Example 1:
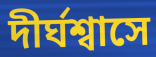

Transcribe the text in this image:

দীর্ঘশ্বাসে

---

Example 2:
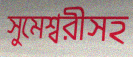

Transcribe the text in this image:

সুমেশ্বরীসহ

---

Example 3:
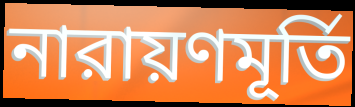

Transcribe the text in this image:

নারায়ণমূর্তি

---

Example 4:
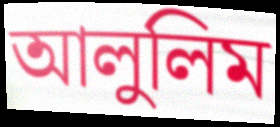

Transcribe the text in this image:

আলুলিম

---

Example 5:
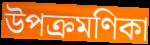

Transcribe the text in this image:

উপক্রমণিকা